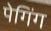
पेगिंग